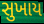
સુખાય